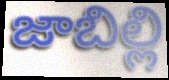
జాబిల్లి